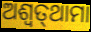
ଅଶ୍ଵତ୍‌ଥାମା